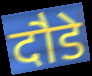
दौडे